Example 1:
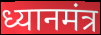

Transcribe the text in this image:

ध्यानमंत्र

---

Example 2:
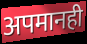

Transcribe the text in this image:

अपमानही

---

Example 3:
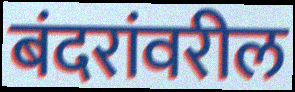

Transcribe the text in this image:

बंदरांवरील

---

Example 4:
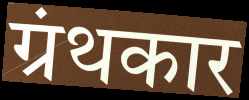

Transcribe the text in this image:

ग्रंथकार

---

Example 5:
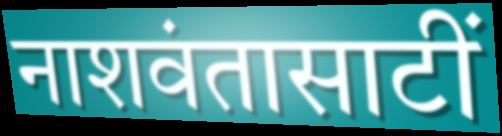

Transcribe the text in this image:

नाशवंतासाटीं